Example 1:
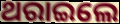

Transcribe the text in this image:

ଥରାଇଲେ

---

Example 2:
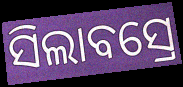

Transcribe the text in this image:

ସିଲାବସ୍ରେ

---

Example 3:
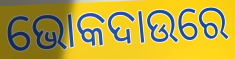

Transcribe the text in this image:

ଭୋକଦାଉରେ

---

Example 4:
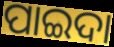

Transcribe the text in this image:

ପାଇଦା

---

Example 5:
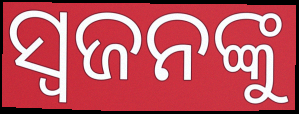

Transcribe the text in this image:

ସ୍ଵଜନଙ୍କୁ